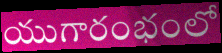
యుగారంభంలో